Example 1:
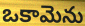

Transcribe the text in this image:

ఒకామెను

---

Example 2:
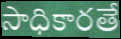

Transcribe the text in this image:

సాధికారతే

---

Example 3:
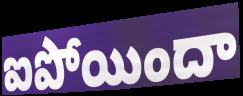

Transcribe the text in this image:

ఐపోయిందా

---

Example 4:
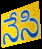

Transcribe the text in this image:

నేసి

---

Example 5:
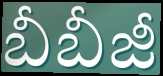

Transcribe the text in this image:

బీబీజీ